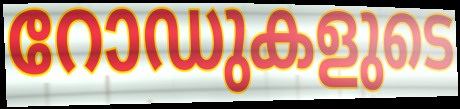
റോഡുകളുടെ